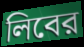
লিবের